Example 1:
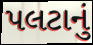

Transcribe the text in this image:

પલટાનું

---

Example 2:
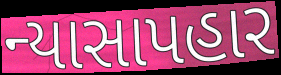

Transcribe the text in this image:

ન્યાસાપહાર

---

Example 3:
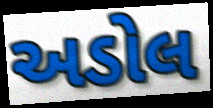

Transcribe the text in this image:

અડોલ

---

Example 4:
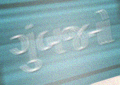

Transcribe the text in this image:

ગુંબજનો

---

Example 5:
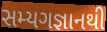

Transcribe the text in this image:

સમ્યગજ્ઞાનથી